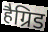
हैग्रिड